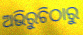
ଅଭିରୁଚିଠାରୁ